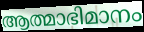
ആത്മാഭിമാനം